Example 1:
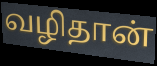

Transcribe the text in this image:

வழிதான்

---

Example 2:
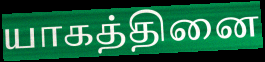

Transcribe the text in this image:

யாகத்தினை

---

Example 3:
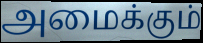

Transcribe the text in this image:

அமைக்கும்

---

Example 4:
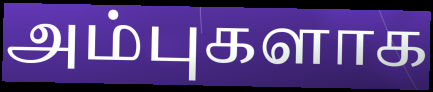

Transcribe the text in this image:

அம்புகளாக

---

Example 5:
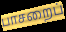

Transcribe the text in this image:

பாசறைப்